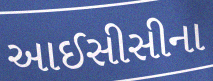
આઈસીસીના